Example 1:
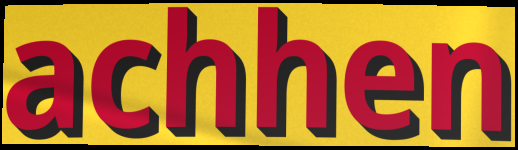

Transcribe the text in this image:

achhen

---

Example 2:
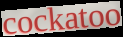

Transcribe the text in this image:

cockatoo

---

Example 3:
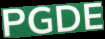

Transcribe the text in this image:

PGDE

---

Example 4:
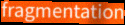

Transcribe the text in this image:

fragmentation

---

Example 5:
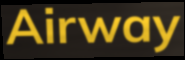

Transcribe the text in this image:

Airway